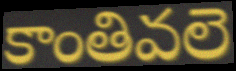
కాంతివలె